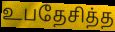
உபதேசித்த